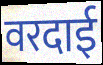
वरदाई